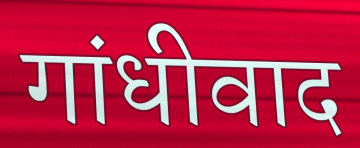
गांधीवाद